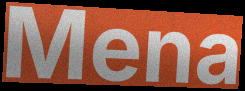
Mena